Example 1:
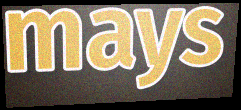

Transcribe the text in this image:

mays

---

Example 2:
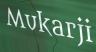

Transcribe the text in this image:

Mukarji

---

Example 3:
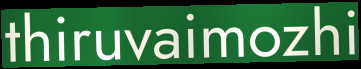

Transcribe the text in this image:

thiruvaimozhi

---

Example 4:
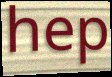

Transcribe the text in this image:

hep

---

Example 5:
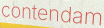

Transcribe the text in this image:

contendam